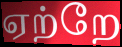
ஏற்றே